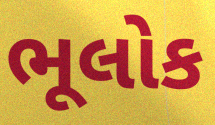
ભૂલોક